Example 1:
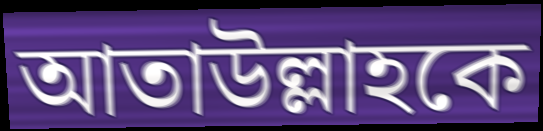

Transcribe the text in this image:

আতাউল্লাহকে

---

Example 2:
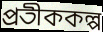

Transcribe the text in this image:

প্রতীককল্প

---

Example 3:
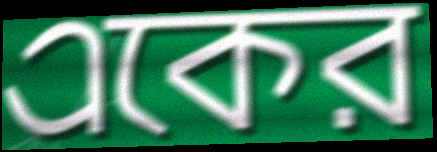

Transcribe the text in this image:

একের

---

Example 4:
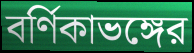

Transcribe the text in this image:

বর্ণিকাভঙ্গের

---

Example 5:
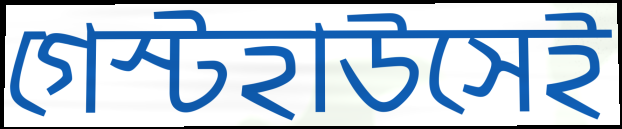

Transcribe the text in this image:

গেস্টহাউসেই